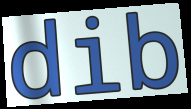
dib